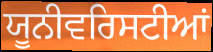
ਯੂਨੀਵਰਿਸਟੀਆਂ